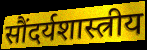
सौंदर्यशास्त्रीय